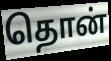
தொன்